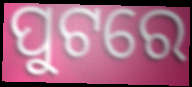
ପୁଟରେ